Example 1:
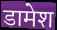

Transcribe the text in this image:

डामेश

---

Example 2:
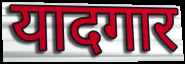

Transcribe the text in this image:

यादगार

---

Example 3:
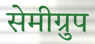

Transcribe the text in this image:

सेमीग्रुप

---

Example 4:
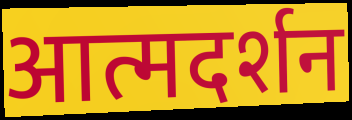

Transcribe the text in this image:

आत्मदर्शन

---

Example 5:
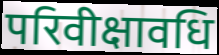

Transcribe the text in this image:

परिवीक्षावधि